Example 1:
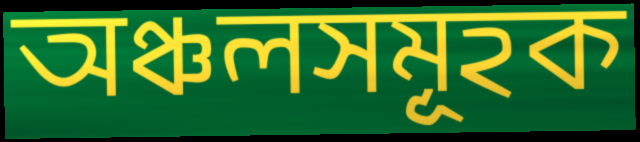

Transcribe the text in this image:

অঞ্চলসমূহক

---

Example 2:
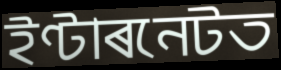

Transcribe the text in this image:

ইণ্টাৰনেটত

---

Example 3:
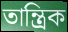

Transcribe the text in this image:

তান্ত্ৰিক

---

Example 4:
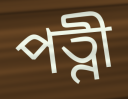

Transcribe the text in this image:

পত্নী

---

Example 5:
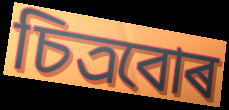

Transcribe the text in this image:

চিত্ৰবোৰ